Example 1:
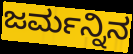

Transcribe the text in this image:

ಜರ್ಮನ್ನಿನ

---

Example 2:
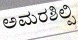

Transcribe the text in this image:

ಅಮರಶಿಲ್ಪಿ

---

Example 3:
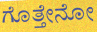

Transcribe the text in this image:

ಗೊತ್ತೇನೋ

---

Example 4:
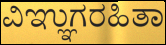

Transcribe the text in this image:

ವಿಞ್ಞುಗರಹಿತಾ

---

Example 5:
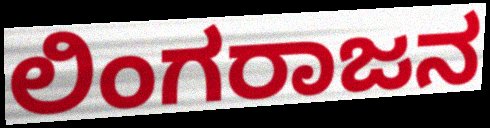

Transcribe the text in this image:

ಲಿಂಗರಾಜನ